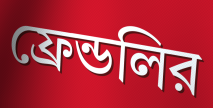
ফ্রেন্ডলির